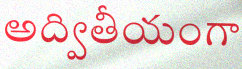
అద్వితీయంగా